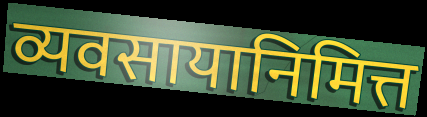
व्यवसायानिमित्त